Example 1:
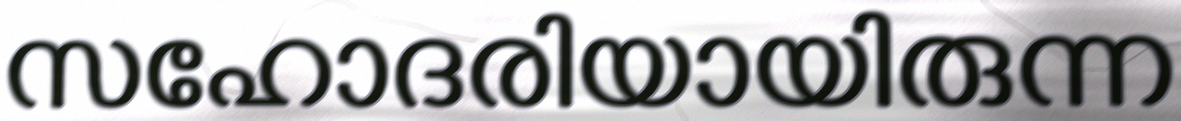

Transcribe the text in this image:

സഹോദരിയായിരുന്ന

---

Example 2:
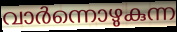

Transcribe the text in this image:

വാർന്നൊഴുകുന്ന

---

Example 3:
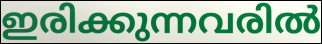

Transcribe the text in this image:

ഇരിക്കുന്നവരിൽ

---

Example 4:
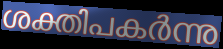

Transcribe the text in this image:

ശക്തിപകർന്നു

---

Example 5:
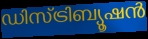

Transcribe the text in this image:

ഡിസ്ട്രിബ്യൂഷൻ